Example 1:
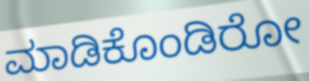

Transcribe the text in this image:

ಮಾಡಿಕೊಂಡಿರೋ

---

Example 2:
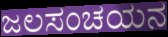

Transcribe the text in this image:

ಜಲಸಂಚಯನ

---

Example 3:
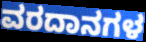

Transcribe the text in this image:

ವರದಾನಗಳ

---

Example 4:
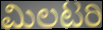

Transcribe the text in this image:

ಮಿಲಟರಿ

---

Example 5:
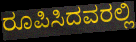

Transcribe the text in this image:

ರೂಪಿಸಿದವರಲ್ಲಿ